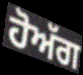
ਹੋਅੱਗ